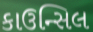
કાઉન્સિલ